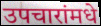
उपचारांमधे